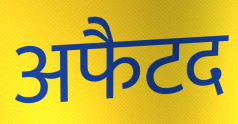
अफैटद